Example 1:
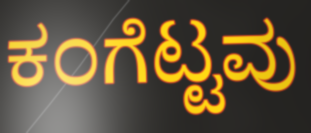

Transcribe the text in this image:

ಕಂಗೆಟ್ಟವು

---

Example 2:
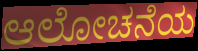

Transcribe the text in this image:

ಆಲೋಚನೆಯ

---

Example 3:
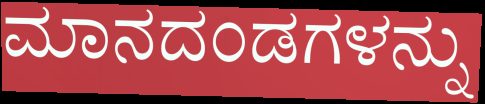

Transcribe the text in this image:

ಮಾನದಂಡಗಳನ್ನು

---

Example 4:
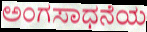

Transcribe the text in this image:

ಅಂಗಸಾಧನೆಯ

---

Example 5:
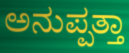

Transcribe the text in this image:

ಅನುಪ್ಪತ್ತಾ